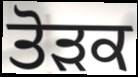
ਤੋੜਕ